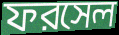
ফরসেল